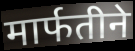
मार्फतीने